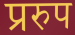
प्ररुप